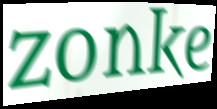
zonke